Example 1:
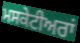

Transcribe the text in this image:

ਮਸਕੇਟੀਅਰਾਂ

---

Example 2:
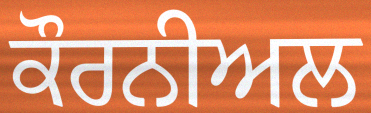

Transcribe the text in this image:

ਕੌਰਨੀਅਲ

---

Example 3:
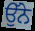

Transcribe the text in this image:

ਉੱਨੇ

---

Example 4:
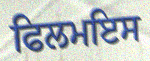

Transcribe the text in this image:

ਫਿਲਮਇਸ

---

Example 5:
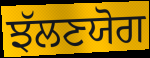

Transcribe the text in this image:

ਝੱਲਣਯੋਗ